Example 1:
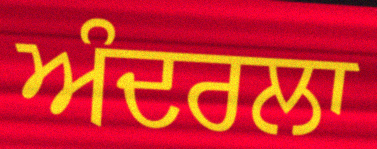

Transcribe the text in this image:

ਅੰਦਰਲਾ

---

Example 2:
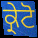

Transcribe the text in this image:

ਕ੍ਰੇਟੋ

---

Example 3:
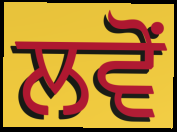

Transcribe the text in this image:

ਲਵੋਂ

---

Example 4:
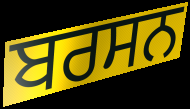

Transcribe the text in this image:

ਬਰਸਨ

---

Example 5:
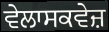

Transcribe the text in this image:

ਵੇਲਾਸਕਵੇਜ਼